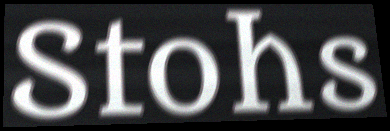
Stohs